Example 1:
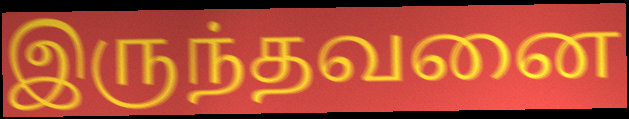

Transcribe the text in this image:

இருந்தவனை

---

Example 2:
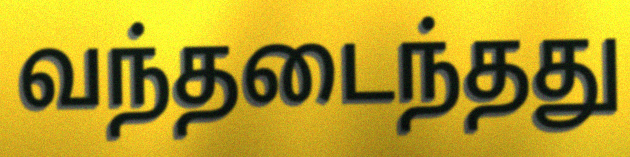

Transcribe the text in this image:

வந்தடைந்தது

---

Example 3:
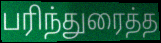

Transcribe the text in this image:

பரிந்துரைத்த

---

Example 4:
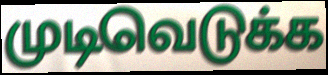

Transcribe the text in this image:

முடிவெடுக்க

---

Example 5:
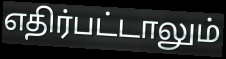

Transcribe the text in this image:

எதிர்பட்டாலும்